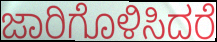
ಜಾರಿಗೊಳಿಸಿದರೆ